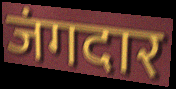
जंगदार